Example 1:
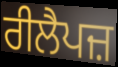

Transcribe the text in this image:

ਰੀਲੈਪਜ਼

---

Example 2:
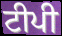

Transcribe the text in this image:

ਟੀਪੀ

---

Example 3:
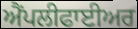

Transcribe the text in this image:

ਐੰਪਲੀਫਾਈਅਰ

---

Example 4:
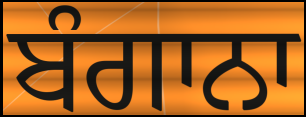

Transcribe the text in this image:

ਬੰਗਾਨਾ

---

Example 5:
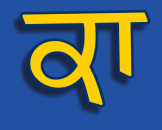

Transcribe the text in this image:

ਕਾ